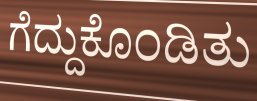
ಗೆದ್ದುಕೊಂಡಿತು